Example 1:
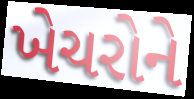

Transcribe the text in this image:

ખેચરોને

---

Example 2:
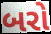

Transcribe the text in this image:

બરો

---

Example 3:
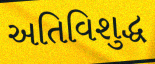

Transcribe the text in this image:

અતિવિશુદ્ધ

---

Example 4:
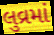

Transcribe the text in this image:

લુવ્રમાં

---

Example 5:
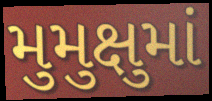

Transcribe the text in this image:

મુમુક્ષુમાં